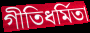
গীতিধর্মিতা